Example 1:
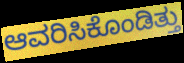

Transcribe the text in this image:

ಆವರಿಸಿಕೊಂಡಿತ್ತು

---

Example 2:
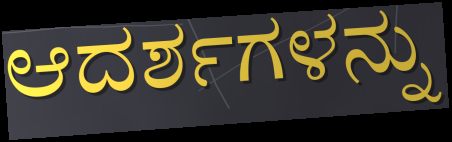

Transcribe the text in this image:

ಆದರ್ಶಗಳನ್ನು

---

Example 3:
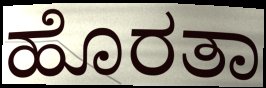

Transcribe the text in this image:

ಹೊರತಾ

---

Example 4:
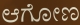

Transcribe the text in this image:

ಆಗೋಣ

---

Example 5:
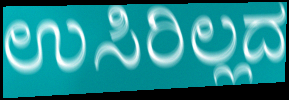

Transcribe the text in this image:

ಉಸಿರಿಲ್ಲದ